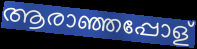
ആരാഞ്ഞപ്പോള്